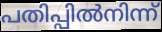
പതിപ്പിൽനിന്ന്